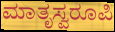
ಮಾತೃಸ್ವರೂಪಿ